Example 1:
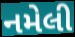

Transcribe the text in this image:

નમેલી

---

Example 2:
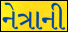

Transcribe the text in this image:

નેત્રાની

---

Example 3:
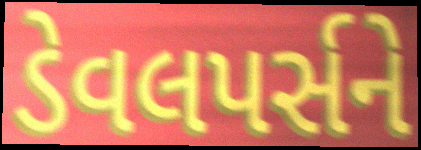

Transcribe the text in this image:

ડેવલપર્સને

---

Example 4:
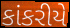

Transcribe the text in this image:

કાંકરીયે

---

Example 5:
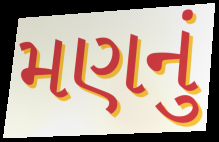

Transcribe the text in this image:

મણનું